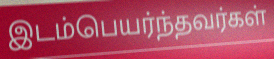
இடம்பெயர்ந்தவர்கள்